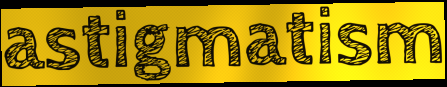
astigmatism